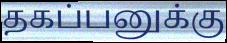
தகப்பனுக்கு